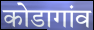
कोडागांव